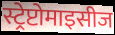
स्ट्रेप्टोमाइसीज